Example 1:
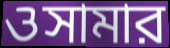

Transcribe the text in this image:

ওসামার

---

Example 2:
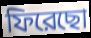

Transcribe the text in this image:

ফিরেছো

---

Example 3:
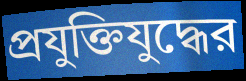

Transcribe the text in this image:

প্রযুক্তিযুদ্ধের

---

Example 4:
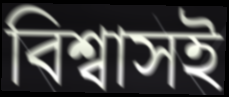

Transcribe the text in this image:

বিশ্বাসই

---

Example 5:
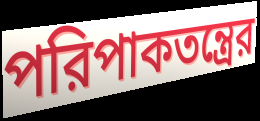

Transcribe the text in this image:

পরিপাকতন্ত্রের